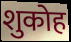
शुकोह